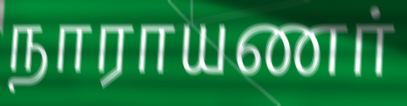
நாராயணர்